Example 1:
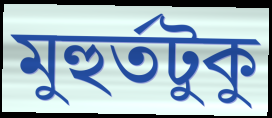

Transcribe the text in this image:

মুহুর্তটুকু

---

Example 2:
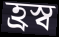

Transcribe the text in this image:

হ্রস্ব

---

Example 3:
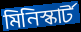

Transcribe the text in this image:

মিনিস্কার্ট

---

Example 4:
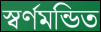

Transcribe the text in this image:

স্বর্ণমন্ডিত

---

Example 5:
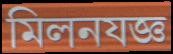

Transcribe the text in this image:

মিলনযজ্ঞ